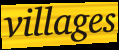
villages